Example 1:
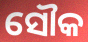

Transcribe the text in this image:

ସୌକ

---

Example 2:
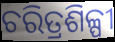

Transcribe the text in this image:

ଚରିତ୍ରଶିଳ୍ପୀ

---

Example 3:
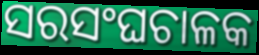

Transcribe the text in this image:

ସରସଂଘଚାଳକ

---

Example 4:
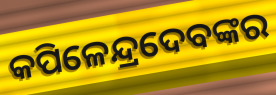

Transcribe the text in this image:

କପିଳେନ୍ଦ୍ରଦେବଙ୍କର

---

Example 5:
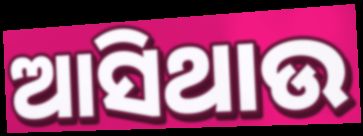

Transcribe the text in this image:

ଆସିଥାଉ